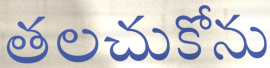
తలచుకోను